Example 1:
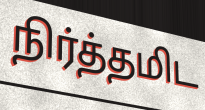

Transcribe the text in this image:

நிர்த்தமிட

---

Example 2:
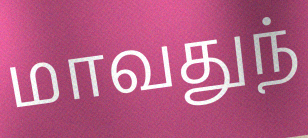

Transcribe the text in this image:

மாவதுந்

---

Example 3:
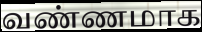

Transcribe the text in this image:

வண்ணமாக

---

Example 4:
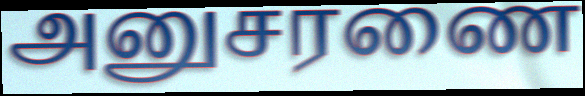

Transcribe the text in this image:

அனுசரணை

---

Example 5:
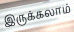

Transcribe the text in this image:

இருக்கலாம்